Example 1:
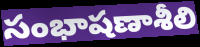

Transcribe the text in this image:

సంభాషణాశీలి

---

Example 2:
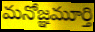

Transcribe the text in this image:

మనోజ్ఞమూర్తి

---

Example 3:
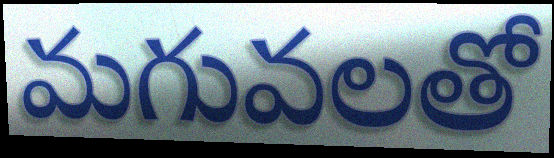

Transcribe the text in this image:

మగువలతో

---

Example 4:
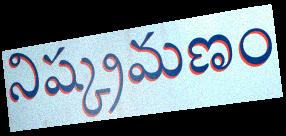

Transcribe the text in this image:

నిష్క్రమణం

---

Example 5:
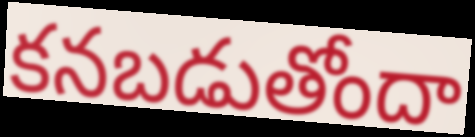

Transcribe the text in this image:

కనబడుతోందా